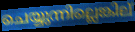
ചെയ്യുന്നില്ലെങ്കില്